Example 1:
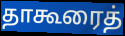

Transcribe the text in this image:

தாகூரைத்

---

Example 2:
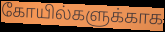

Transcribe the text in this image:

கோயில்களுக்காக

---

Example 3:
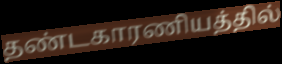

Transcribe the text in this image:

தண்டகாரணியத்தில்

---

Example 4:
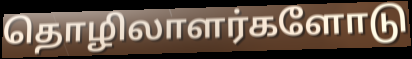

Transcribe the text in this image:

தொழிலாளர்களோடு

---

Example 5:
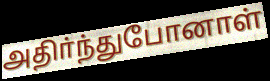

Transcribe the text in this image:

அதிர்ந்துபோனாள்